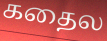
கதைல